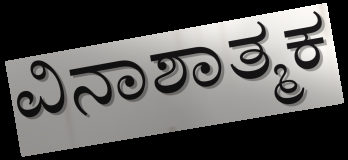
ವಿನಾಶಾತ್ಮಕ